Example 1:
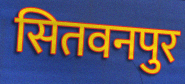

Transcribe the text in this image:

सितवनपुर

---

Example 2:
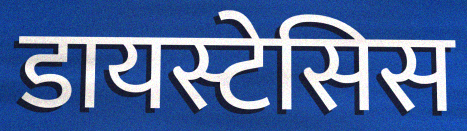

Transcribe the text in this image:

डायस्टेसिस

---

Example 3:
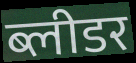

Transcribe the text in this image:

ब्लीडर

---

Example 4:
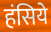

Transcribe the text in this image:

हंसिये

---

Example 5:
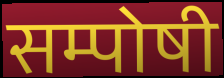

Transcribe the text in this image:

सम्पोषी